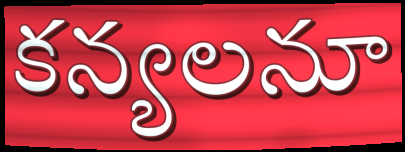
కన్యలనూ